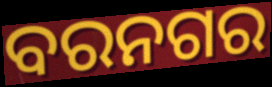
ବରନଗର